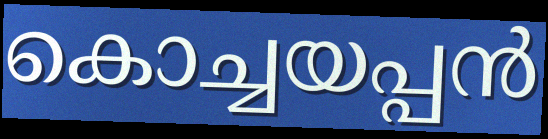
കൊച്ചയപ്പൻ